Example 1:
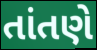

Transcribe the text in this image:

તાંતણે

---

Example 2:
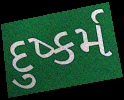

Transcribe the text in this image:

દુષ્કર્મ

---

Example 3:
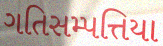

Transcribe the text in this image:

ગતિસમ્પત્તિયા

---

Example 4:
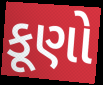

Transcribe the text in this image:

કૂણો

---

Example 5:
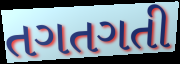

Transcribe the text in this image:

તગતગતી